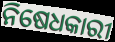
ନିଷେଧକାରୀ